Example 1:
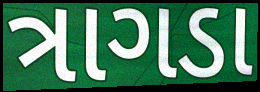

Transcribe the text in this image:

ત્રાગડા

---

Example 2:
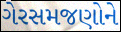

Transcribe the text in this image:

ગેરસમજણોને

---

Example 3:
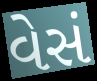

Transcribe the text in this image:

વેસં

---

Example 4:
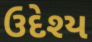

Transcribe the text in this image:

ઉદેશ્ય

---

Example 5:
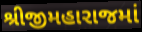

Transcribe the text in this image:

શ્રીજીમહારાજમાં